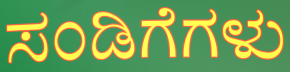
ಸಂಡಿಗೆಗಳು